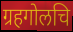
ग्रहगोलचि